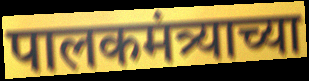
पालकमंत्र्याच्या